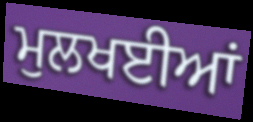
ਮੁਲਖਈਆਂ